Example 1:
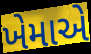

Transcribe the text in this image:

ખેમાએ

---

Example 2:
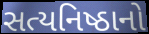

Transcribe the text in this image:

સત્યનિષ્ઠાનો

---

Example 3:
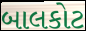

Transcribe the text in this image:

બાલકોટ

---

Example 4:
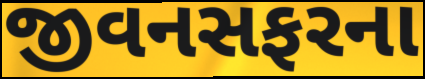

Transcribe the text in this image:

જીવનસફરના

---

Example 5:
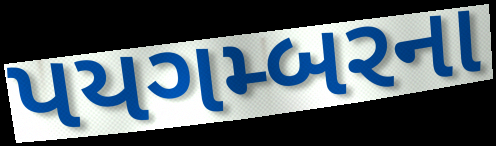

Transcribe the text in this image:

પયગમ્બરના